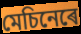
মেচিনেৰে